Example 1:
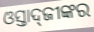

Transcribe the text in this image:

ଓସ୍ତାଦ୍‌ଜୀଙ୍କର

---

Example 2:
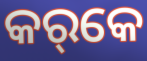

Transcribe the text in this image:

କର୍‌କେ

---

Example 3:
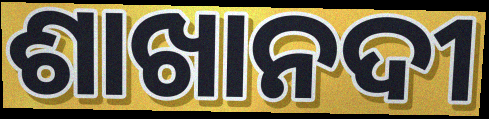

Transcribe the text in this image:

ଶାଖାନଦୀ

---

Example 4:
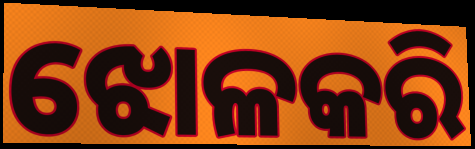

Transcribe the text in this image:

ଝୋଳକରି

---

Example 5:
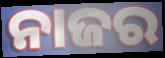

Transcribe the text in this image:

ନାଜର